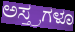
ಅಸ್ತ್ರಗಳೂ